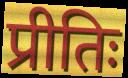
प्रीतिः